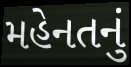
મહેનતનું